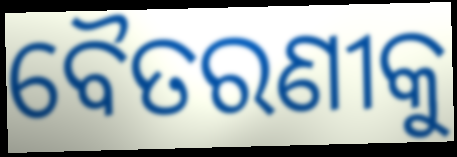
ବୈତରଣୀକୁ